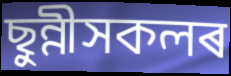
ছুন্নীসকলৰ